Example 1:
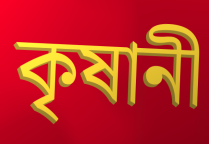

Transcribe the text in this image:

কৃষানী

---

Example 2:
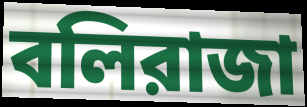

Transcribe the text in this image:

বলিরাজা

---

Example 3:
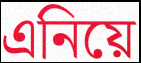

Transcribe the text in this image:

এনিয়ে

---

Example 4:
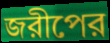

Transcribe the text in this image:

জরীপের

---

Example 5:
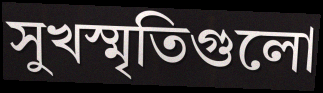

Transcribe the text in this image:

সুখস্মৃতিগুলো